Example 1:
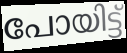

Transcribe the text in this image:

പോയിട്ട്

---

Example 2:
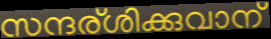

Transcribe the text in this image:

സന്ദര്ശിക്കുവാന്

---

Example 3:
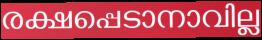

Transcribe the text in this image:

രക്ഷപ്പെടാനാവില്ല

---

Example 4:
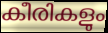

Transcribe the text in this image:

കീരികളും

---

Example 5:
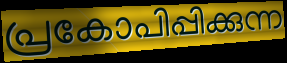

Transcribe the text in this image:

പ്രകോപിപ്പിക്കുന്ന